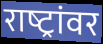
राष्ट्रांवर